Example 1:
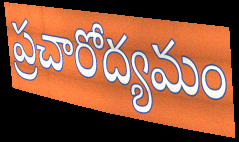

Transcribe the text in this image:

ప్రచారోద్యమం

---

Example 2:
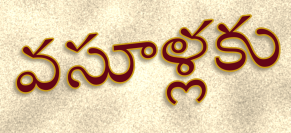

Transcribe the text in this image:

వసూళ్లకు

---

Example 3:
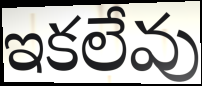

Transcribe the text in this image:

ఇకలేవు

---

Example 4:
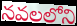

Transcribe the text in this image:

నవలలోని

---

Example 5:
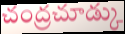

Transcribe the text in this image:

చంద్రచూడ్కు